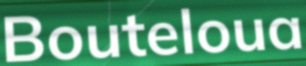
Bouteloua